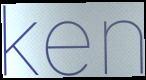
ken